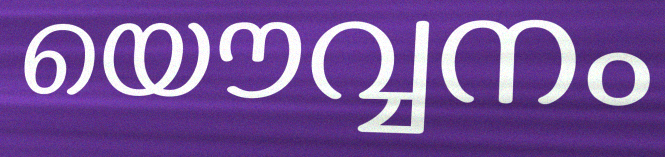
യൌവ്വനം